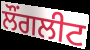
ਲੌਂਗਲੀਟ